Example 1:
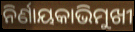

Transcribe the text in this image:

ନିର୍ଣାୟକାଭିମୁଖୀ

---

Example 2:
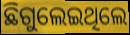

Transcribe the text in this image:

ଛିଗୁଲେଇଥିଲେ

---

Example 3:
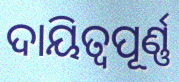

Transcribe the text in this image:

ଦାୟିତ୍ୱପୂର୍ଣ୍ଣ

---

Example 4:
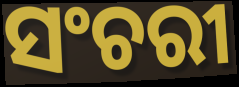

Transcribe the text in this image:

ସଂଚରୀ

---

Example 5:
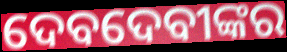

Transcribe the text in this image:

ଦେବଦେବୀଙ୍କର